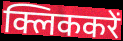
क्लिककरें